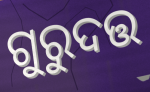
ଗୁରୁଦତ୍ତ